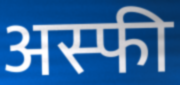
अस्फी